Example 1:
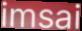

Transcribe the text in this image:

imsai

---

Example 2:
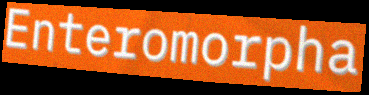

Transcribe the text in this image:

Enteromorpha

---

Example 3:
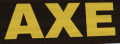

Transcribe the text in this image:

AXE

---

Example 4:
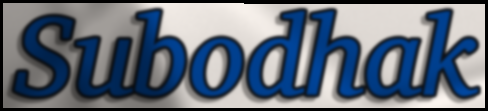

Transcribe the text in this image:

Subodhak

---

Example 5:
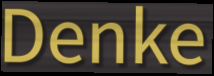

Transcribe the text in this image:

Denke